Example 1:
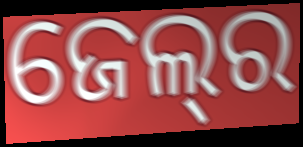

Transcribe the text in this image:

ଜେଲ୍‍ର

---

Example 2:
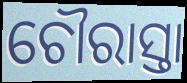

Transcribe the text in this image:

ଚୌରାସ୍ତା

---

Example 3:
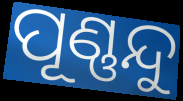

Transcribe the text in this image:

ପୂଣ୍ଣନ୍ଦୁ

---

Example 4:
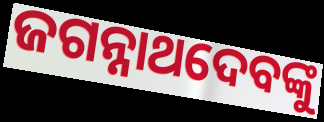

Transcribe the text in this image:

ଜଗନ୍ନାଥଦେବଙ୍କୁ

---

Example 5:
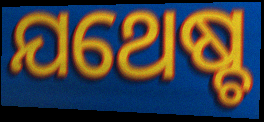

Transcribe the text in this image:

ଯଥେଷ୍ଚ